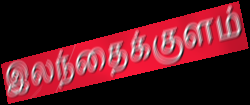
இலந்தைக்குளம்